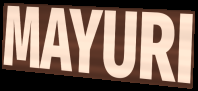
MAYURI